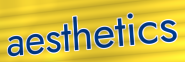
aesthetics